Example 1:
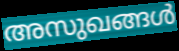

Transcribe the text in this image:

അസുഖങ്ങൾ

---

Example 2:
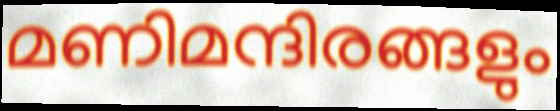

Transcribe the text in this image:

മണിമന്ദിരങ്ങളും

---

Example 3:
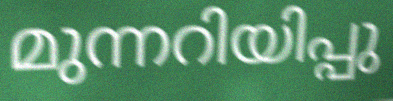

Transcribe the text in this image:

മുന്നറിയിപ്പു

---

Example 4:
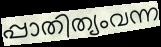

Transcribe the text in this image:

പ്പാതിത്യംവന്ന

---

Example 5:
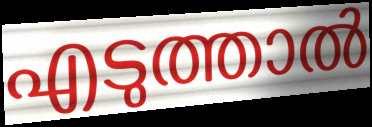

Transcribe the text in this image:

എടുത്താൽ